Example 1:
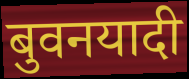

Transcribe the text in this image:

बुवनयादी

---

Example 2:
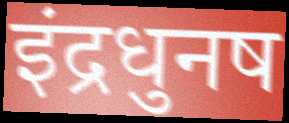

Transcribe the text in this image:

इंद्रधुनष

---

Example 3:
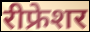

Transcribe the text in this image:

रीफ्रेशर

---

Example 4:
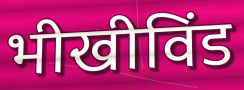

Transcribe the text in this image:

भीखीविंड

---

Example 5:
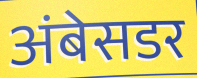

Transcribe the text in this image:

अंबेसडर